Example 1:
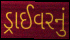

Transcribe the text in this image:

ડ્રાઈવરનું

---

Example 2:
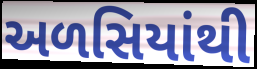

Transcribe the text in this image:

અળસિયાંથી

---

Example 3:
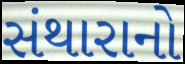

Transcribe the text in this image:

સંથારાનો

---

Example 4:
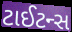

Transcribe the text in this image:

ટાઈટન્સ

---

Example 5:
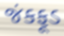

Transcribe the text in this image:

જંકફૂડ